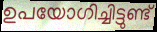
ഉപയോഗിച്ചിട്ടുണ്ട്